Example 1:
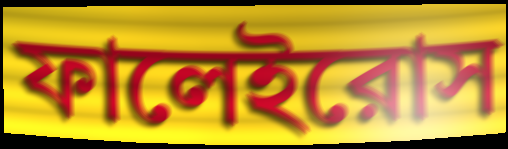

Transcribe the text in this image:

ফালেইরোস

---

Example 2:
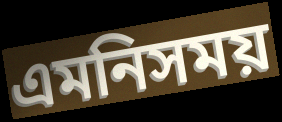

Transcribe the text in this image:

এমনিসময়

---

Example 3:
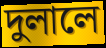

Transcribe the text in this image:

দুলালে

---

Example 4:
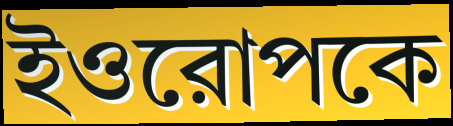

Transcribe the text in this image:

ইওরোপকে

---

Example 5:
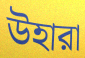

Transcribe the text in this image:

উহারা